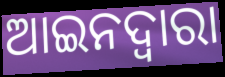
ଆଇନଦ୍ଵାରା